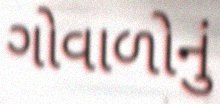
ગોવાળોનું